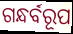
ଗନ୍ଧର୍ବରୂପ